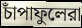
চাঁপাফুলেরা